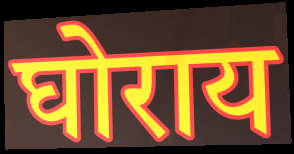
घोराय